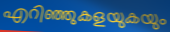
എറിഞ്ഞുകളയുകയും